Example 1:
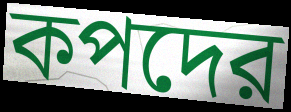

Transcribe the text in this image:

কপদের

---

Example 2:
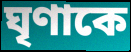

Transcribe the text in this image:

ঘৃণাকে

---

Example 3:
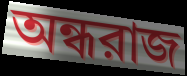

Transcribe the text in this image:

অন্ধরাজ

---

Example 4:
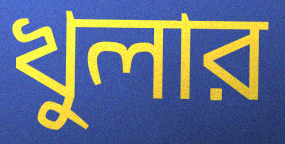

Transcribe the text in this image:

খুলার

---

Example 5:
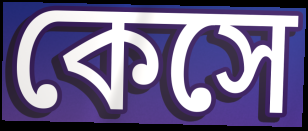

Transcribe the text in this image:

কেসে